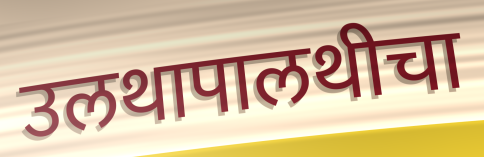
उलथापालथीचा